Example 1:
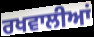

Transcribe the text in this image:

ਰਖਵਾਲੀਆਂ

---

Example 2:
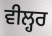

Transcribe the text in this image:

ਵੀਲ੍ਹਰ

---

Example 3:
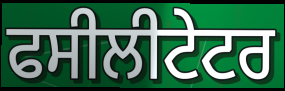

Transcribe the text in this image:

ਫਸੀਲੀਟੇਟਰ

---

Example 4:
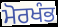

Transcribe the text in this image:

ਮੋਰਖੰਭ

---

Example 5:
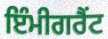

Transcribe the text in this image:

ਇੰਮੀਗਰੈਂਟ